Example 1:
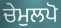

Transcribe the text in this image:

ਚੇਮੁਲਪੋ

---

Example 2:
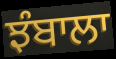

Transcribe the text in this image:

ਝੰਬਾਲਾ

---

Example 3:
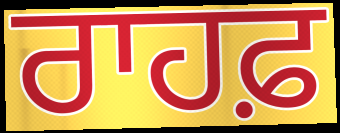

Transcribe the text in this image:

ਰਾਹਫ਼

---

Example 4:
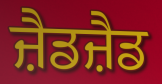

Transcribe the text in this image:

ਜ਼ੈਡਜ਼ੈਡ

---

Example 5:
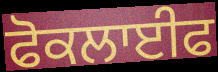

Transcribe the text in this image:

ਫੋਕਲਾਈਫ